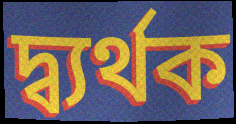
দ্ব্যর্থক